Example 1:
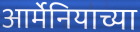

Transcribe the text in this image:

आर्मेनियाच्या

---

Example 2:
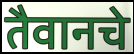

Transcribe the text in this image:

तैवानचे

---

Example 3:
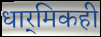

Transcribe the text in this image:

धार्मिकही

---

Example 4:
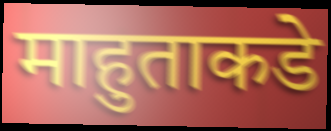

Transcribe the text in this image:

माहुताकडे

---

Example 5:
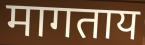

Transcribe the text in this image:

मागताय